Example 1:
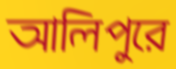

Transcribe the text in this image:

আলিপুরে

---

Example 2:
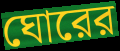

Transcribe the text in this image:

ঘোরের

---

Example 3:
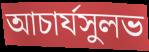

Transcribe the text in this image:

আচার্যসুলভ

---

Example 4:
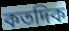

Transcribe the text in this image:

কতদিক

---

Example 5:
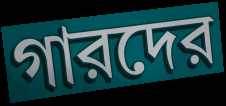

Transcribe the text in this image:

গারদের